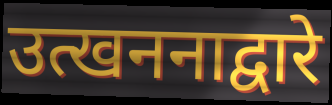
उत्खननाद्वारे